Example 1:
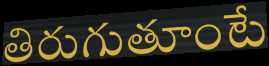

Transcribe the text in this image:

తిరుగుతూంటే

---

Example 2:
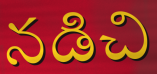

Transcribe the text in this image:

నడిచి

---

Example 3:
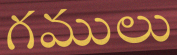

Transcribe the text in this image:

గములు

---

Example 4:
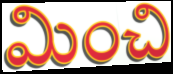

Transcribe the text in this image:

మించి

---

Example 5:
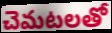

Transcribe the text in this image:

చెమటలతో